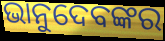
ଭାନୁଦେବଙ୍କର